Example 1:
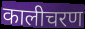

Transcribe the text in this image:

कालीचरण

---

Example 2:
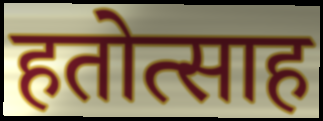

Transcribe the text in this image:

हतोत्साह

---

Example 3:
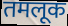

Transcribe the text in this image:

तमलूक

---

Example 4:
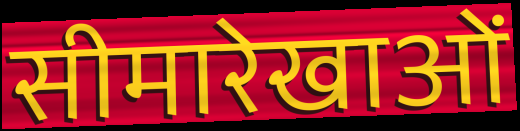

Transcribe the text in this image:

सीमारेखाओं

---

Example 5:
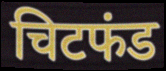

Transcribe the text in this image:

चिटफंड